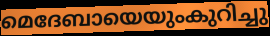
മെദേബായെയുംകുറിച്ചു